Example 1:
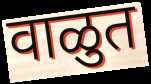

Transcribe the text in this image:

वाळुत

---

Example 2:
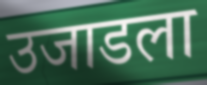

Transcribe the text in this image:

उजाडला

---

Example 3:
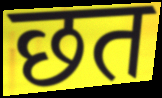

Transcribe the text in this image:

छत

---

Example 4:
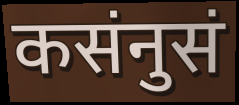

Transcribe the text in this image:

कसंनुसं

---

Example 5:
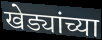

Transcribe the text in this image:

खेड्यांच्या